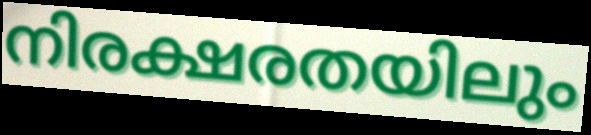
നിരക്ഷരതയിലും